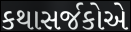
કથાસર્જકોએ